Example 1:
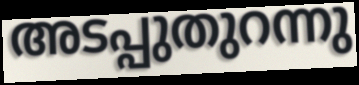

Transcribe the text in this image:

അടപ്പുതുറന്നു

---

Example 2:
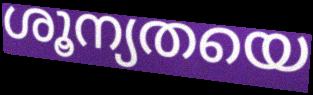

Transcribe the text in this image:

ശൂന്യതയെ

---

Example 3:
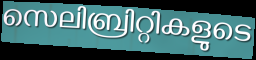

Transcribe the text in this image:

സെലിബ്രിറ്റികളുടെ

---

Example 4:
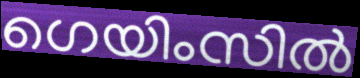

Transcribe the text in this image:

ഗെയിംസിൽ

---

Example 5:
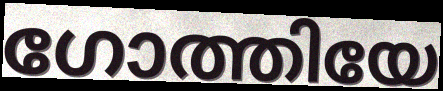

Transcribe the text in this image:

ഗോത്തിയേ